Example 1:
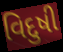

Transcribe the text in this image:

વિદુષી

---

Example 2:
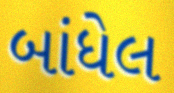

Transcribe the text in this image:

બાંધેલ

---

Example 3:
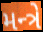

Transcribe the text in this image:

મન્ત્રે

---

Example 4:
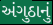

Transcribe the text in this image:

અંગુઠાનું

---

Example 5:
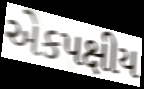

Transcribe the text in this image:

એકપક્ષીય